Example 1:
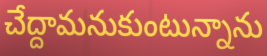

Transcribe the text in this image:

చేద్దామనుకుంటున్నాను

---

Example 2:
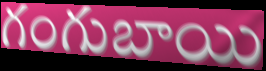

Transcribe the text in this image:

గంగుబాయి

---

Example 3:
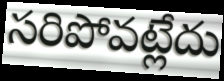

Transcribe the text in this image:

సరిపోవట్లేదు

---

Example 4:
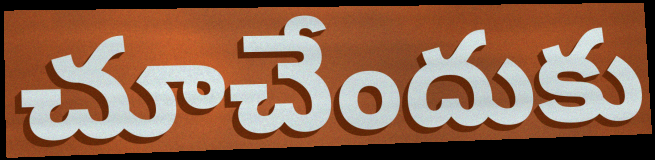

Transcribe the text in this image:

చూచేందుకు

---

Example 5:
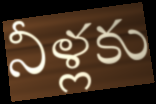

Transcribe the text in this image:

నీళ్లకు